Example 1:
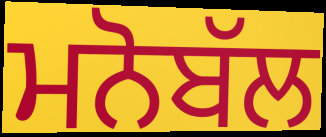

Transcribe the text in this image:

ਮਨੋਬੱਲ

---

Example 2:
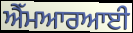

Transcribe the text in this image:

ਐੱਮਆਰਆਈ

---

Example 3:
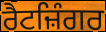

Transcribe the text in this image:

ਰੈਟਜ਼ਿੰਗਰ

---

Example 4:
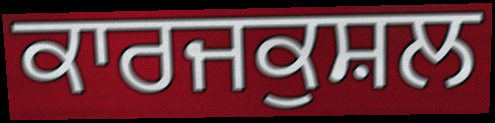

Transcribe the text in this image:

ਕਾਰਜਕੁਸ਼ਲ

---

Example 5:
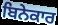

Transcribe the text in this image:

ਬਿਨੇਕਾਰ